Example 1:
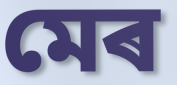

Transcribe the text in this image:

মেৰ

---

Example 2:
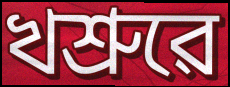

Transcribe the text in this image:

খশ্ৰুৱে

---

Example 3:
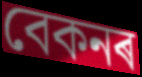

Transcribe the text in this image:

বেকনৰ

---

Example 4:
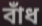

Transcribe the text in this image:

বাঁধ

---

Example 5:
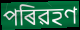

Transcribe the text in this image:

পৰিৱহণ